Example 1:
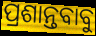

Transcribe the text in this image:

ପ୍ରଶାନ୍ତବାବୁ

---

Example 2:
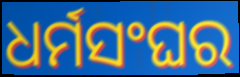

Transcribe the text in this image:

ଧର୍ମସଂଘର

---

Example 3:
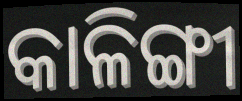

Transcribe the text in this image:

କାଳିଙ୍ଗୀ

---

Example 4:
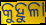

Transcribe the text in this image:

କୁହୁଳା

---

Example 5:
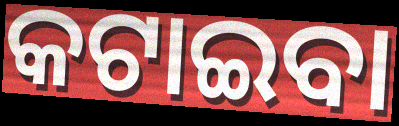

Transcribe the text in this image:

କଟାଇବା